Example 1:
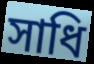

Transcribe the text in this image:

সাধি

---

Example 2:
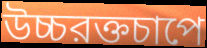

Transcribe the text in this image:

উচ্চরক্তচাপে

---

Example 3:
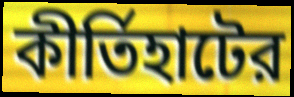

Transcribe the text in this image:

কীর্তিহাটের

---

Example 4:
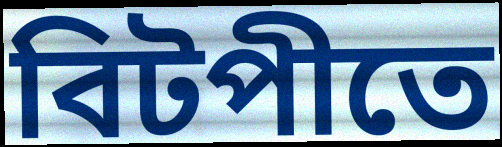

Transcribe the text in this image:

বিটপীতে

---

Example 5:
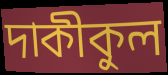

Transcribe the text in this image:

দাকীকুল